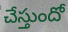
చేస్తుందో